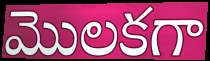
మొలకగా